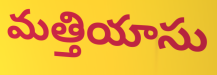
మత్తియాసు